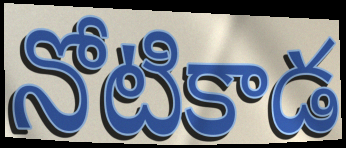
నోటికాడ